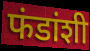
फंडांशी